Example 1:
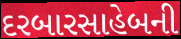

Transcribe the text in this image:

દરબારસાહેબની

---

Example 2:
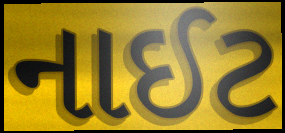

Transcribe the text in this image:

નાઈટ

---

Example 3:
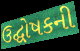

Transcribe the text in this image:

ઉદ્ઘોષકની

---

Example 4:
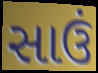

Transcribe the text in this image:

સાઉં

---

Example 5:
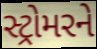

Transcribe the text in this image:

સ્ટ્રોમરને